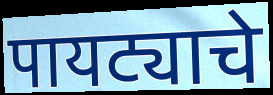
पायट्याचे